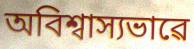
অবিশ্বাস্যভাৱে